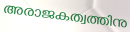
അരാജകത്വത്തിനു